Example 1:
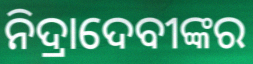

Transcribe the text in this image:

ନିଦ୍ରାଦେବୀଙ୍କର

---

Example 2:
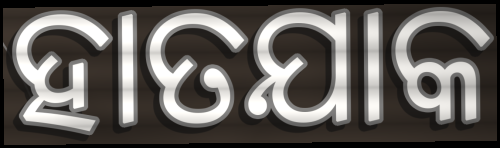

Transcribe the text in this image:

ହାତଯାକ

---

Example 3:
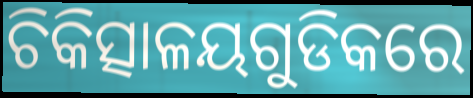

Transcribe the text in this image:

ଚିକିତ୍ସାଳୟଗୁଡିକରେ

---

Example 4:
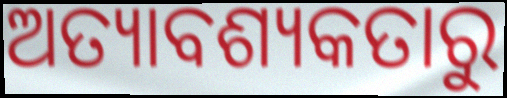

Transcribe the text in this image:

ଅତ୍ୟାବଶ୍ୟକତାରୁ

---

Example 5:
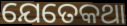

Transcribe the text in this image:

ଯେତେକଥା